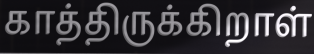
காத்திருக்கிறாள்